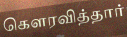
கௌரவித்தார்